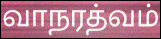
வாநரத்வம்